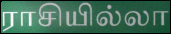
ராசியில்லா